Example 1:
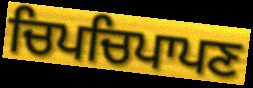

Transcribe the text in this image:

ਚਿਪਚਿਪਾਪਣ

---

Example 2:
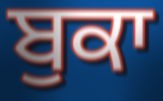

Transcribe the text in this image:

ਬੁਕਾ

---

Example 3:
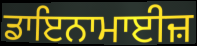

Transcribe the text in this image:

ਡਾਇਨਾਮਾਈਜ਼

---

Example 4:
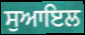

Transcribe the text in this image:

ਸੁਆਇਲ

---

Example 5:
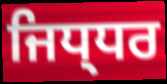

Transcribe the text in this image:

ਜਿਧ੍ਧਰ